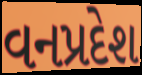
વનપ્રદેશ